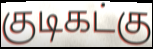
குடிகட்கு